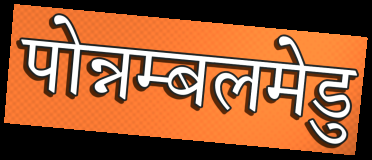
पोन्नम्बलमेडु